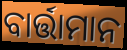
ବାର୍ତ୍ତାମାନ